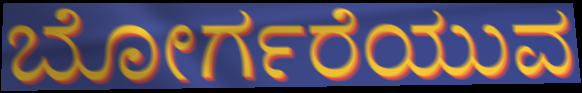
ಬೋರ್ಗರೆಯುವ